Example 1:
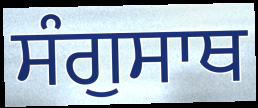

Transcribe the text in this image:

ਸੰਗੁਸਾਥ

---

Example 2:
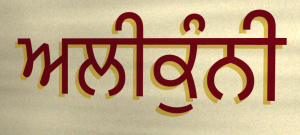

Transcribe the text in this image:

ਅਲੀਕੁੰਨੀ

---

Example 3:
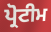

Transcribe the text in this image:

ਪ੍ਰੋਟੀਮ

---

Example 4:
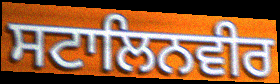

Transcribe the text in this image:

ਸਟਾਲਿਨਵੀਰ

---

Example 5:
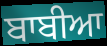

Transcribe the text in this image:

ਬਾਬੀਆ